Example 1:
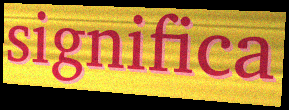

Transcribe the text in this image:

significa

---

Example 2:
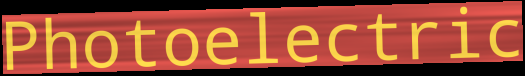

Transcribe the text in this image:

Photoelectric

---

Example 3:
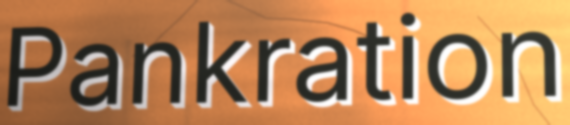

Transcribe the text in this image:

Pankration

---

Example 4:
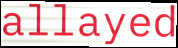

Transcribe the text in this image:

allayed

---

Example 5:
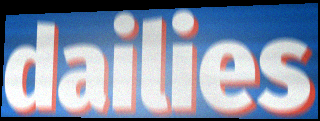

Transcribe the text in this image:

dailies